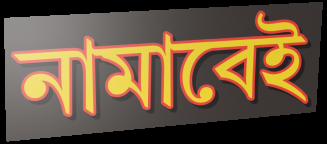
নামাবেই